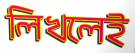
লিখলেই